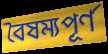
বৈষম্যপূৰ্ণ